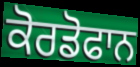
ਕੋਰਡੋਫਾਨ